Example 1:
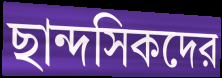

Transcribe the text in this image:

ছান্দসিকদের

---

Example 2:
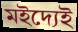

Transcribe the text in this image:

মইদ্যেই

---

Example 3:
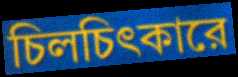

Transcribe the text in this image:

চিলচিৎকারে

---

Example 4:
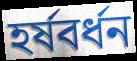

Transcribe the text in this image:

হর্ষবর্ধন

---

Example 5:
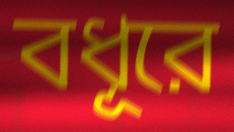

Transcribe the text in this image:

বধূরে